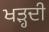
ਖੜ੍ਹਦੀ